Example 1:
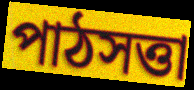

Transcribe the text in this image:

পাঠসত্তা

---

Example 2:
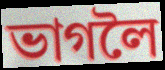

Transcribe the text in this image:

ভাগলৈ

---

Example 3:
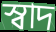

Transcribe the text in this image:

স্বাদ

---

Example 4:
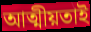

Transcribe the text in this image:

আত্মীয়তাই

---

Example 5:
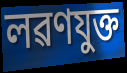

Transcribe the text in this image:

লৱণযুক্ত